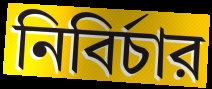
নিবির্চার